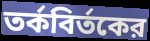
তর্কবির্তকের